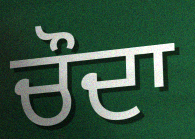
ਚੌਦਾ